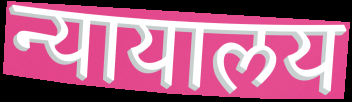
न्यायालय